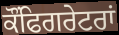
ਕੌਂਫਿਗਰੇਟਰਾਂ